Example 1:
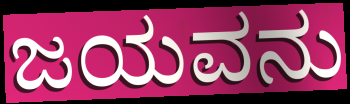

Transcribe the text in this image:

ಜಯವನು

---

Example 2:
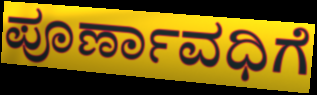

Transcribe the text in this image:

ಪೂರ್ಣಾವಧಿಗೆ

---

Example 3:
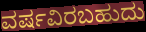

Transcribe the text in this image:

ವರ್ಷವಿರಬಹುದು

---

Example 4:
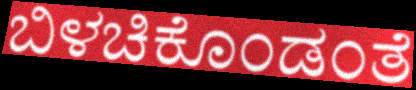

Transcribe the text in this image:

ಬಿಳಚಿಕೊಂಡಂತೆ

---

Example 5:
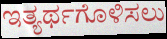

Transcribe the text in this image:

ಇತ್ಯರ್ಥಗೊಳಿಸಲು